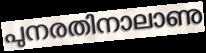
പുനരതിനാലാണു